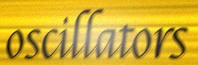
oscillators